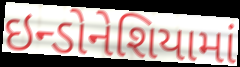
ઇન્ડોનેશિયામાં